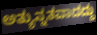
ಅತ್ಯುನ್ನತವಾದದ್ದು